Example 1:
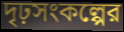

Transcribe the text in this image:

দৃঢ়সংকল্পের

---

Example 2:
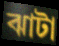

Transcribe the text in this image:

ঝাটা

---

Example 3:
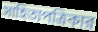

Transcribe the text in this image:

সাহিত্যপত্রিকার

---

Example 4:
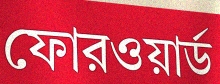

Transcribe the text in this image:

ফোরওয়ার্ড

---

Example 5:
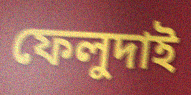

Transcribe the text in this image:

ফেলুদাই